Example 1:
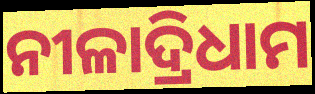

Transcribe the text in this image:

ନୀଳାଦ୍ରିଧାମ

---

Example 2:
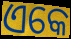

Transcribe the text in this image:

ଏକେ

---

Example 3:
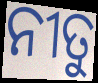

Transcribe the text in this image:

ନୀତୁ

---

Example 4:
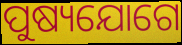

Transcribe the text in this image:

ପୁଷ୍ୟଯୋଗେ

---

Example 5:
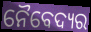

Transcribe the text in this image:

ନୈବେଦ୍ୟର